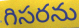
గిసరను